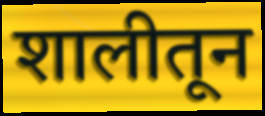
शालीतून